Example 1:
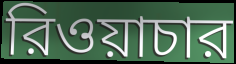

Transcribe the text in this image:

রিওয়াচার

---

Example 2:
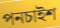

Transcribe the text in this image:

পনচাইশ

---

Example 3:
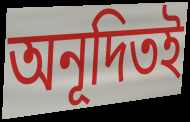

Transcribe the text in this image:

অনূদিতই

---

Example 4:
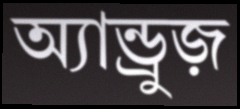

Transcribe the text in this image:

অ্যান্ড্রুজ়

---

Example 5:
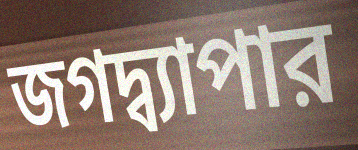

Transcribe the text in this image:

জগদ্ব্যাপার